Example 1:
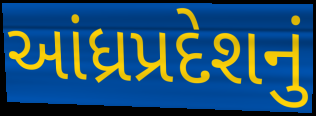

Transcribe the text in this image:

આંધ્રપ્રદેશનું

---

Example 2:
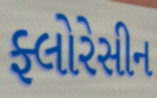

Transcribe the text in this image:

ફ્લોરેસીન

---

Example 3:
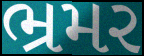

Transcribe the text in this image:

ભ્રમર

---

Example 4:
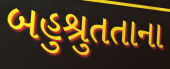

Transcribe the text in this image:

બહુશ્રુતતાના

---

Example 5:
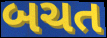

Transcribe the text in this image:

બચત